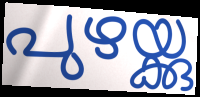
പുഴയ്ക്കു